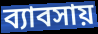
ব্যাবসায়